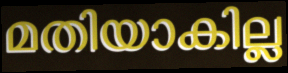
മതിയാകില്ല